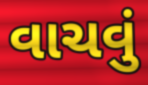
વાચવું